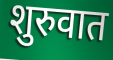
शुरुवात